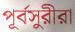
পূর্বসুরীরা